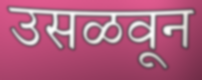
उसळवून